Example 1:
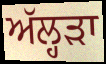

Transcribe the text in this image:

ਅੱਲ੍ਹੜਾ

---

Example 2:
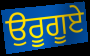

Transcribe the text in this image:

ਉਰੂਗੂਏ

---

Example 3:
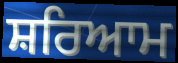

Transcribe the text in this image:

ਸ਼ਰਿਆਮ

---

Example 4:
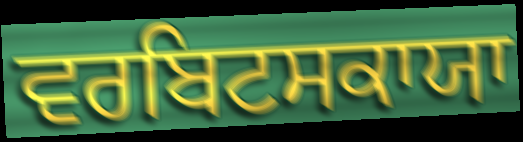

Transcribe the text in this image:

ਵਰਬਿਟਸਕਾਯਾ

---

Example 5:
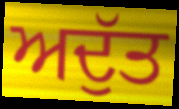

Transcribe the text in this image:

ਅਦੁੱਤ